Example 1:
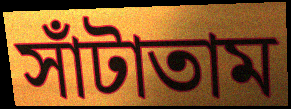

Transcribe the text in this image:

সাঁটাতাম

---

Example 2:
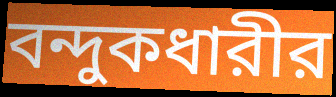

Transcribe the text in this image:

বন্দুকধারীর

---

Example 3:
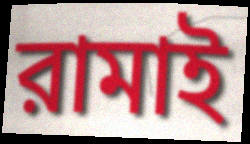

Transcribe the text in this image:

রামাই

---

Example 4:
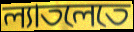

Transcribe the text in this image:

ল্যাতলেতে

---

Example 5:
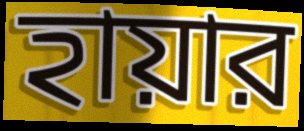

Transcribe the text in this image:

হায়ার